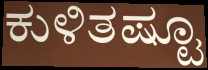
ಕುಳಿತಷ್ಟೂ